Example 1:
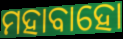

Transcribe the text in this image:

ମହାବାହୋ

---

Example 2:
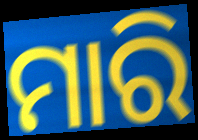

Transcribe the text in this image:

ମାରି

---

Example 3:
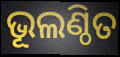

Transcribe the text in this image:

ଭୂଲଣ୍ଠିତ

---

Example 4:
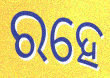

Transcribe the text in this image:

ରହେ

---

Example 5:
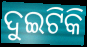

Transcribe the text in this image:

ଦୁଇଟିକି